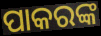
ପାକରଙ୍କ